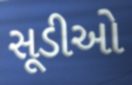
સૂડીઓ